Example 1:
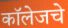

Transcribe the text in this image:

कॉलेजचे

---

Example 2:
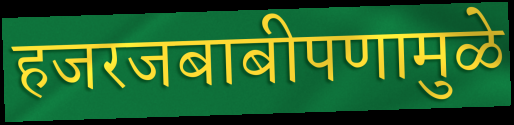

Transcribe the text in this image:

हजरजबाबीपणामुळे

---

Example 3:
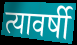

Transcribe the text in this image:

त्यावर्षी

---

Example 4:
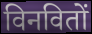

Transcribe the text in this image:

विनवितों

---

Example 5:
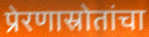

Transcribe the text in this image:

प्रेरणास्रोतांचा